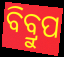
ବିବ୍ରୁପ